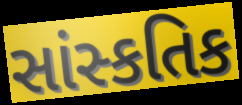
સાંસ્કતિક